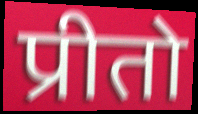
प्रीतो